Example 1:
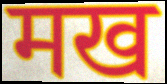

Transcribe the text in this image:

मख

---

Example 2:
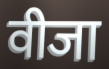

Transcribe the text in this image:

वीजा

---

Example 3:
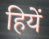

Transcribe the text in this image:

हियें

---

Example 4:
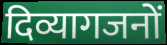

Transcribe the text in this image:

दिव्यागजनों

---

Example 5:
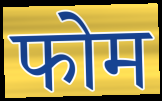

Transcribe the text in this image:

फोम